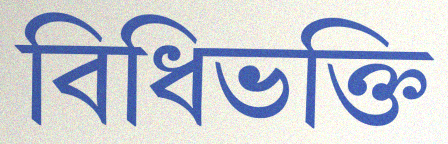
বিধিভক্তি